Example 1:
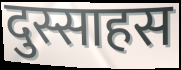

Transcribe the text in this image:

दुस्साहस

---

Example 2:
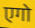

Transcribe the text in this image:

एगो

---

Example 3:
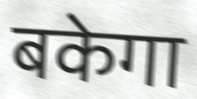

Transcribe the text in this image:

बकेगा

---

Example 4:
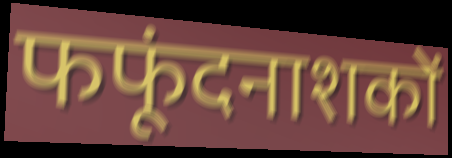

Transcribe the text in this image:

फफूंदनाशकों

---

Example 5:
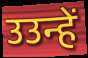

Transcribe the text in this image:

उउन्हें